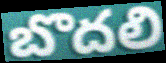
బొదలి